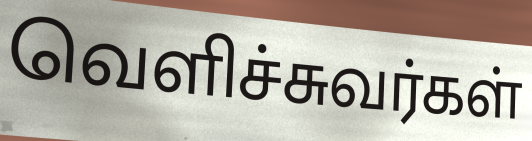
வெளிச்சுவர்கள்